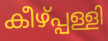
കീഴ്പ്പള്ളി